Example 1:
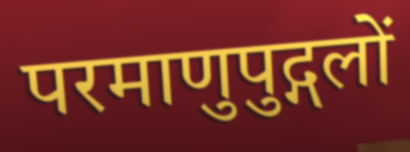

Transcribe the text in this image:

परमाणुपुद्गलों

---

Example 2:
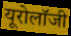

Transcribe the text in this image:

यूरोलॉजी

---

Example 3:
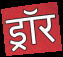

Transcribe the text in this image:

ड्रॉर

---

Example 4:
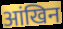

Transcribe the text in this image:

आंखिन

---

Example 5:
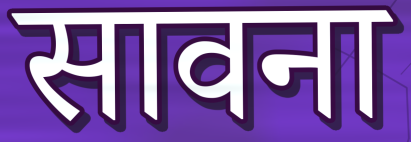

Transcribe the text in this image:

सावना